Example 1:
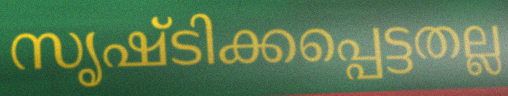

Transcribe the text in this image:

സൃഷ്ടിക്കപ്പെട്ടതല്ല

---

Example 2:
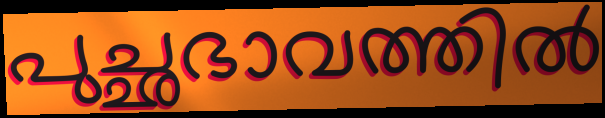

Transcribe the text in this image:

പുച്ഛഭാവത്തിൽ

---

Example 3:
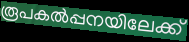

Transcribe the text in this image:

രൂപകൽപ്പനയിലേക്ക്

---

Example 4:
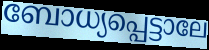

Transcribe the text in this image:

ബോധ്യപ്പെട്ടാലേ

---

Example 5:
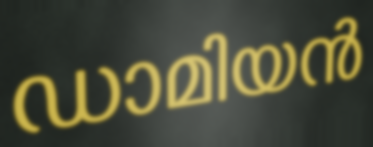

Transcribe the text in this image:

ഡാമിയൻ